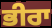
ਭੀਰਾ